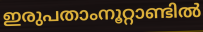
ഇരുപതാംനൂറ്റാണ്ടിൽ